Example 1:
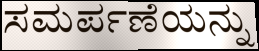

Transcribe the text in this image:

ಸಮರ್ಪಣೆಯನ್ನು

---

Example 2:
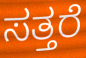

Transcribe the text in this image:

ಸತ್ತರೆ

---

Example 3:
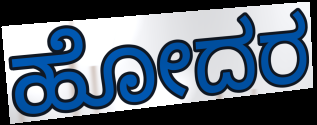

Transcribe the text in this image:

ಹೋದರ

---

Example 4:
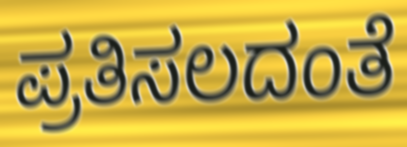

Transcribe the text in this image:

ಪ್ರತಿಸಲದಂತೆ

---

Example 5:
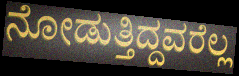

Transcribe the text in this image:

ನೋಡುತ್ತಿದ್ದವರೆಲ್ಲ